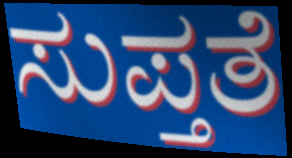
ಸುಪ್ತತೆ